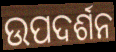
ଉପଦର୍ଶନ